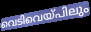
വെടിവെയ്പിലും